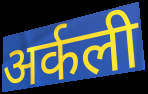
अर्कली